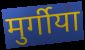
मुर्गीया